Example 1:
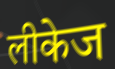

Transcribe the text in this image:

लीकेज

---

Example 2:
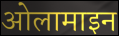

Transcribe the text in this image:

ओलामाइन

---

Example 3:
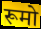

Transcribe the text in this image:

रूमो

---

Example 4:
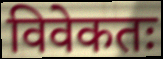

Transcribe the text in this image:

विवेकतः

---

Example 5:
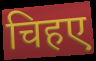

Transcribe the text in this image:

चिहए